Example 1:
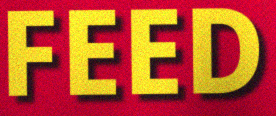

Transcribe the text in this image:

FEED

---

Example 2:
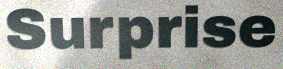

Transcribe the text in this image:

Surprise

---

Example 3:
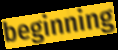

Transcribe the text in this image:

beginning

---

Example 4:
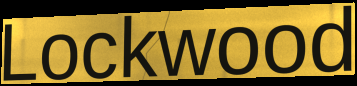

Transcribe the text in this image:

Lockwood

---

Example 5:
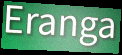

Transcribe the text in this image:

Eranga